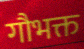
गौभक्त